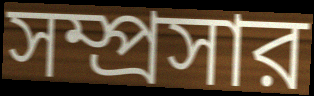
সম্প্রসার